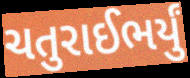
ચતુરાઈભર્યું